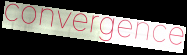
convergence